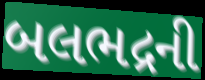
બલભદ્રની